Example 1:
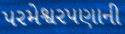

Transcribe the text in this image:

પરમેશ્વરપણાની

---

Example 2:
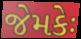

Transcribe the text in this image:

જેમકેઃ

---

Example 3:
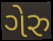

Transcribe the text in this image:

ગેરુ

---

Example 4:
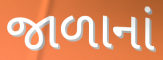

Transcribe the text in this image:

જાળાનાં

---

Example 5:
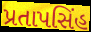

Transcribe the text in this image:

પ્રતાપસિંહ